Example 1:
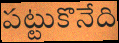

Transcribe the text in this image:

పట్టుకొనేది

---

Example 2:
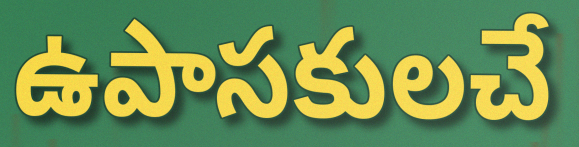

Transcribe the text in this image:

ఉపాసకులచే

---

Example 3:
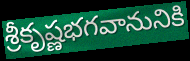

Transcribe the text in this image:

శ్రీకృష్ణభగవానునికి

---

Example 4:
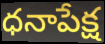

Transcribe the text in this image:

ధనాపేక్ష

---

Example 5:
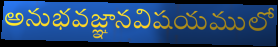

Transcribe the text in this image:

అనుభవజ్ఞానవిషయములో